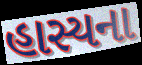
હાસ્યના